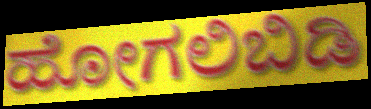
ಹೋಗಲಿಬಿಡಿ